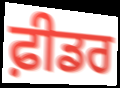
ਫ਼ੀਡਰ